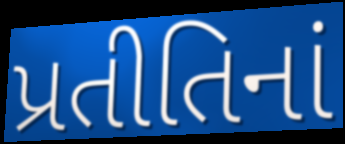
પ્રતીતિનાં